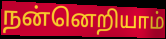
நன்னெறியாம்